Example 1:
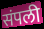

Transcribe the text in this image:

संपली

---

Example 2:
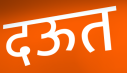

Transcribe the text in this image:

दऊत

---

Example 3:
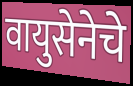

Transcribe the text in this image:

वायुसेनेचे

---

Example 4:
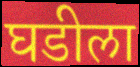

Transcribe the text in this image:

घडीला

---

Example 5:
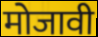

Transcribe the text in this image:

मोजावी